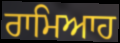
ਰਾਮਿਆਹ